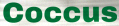
Coccus